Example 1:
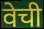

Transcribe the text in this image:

वेची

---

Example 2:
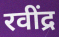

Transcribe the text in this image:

रवींद्र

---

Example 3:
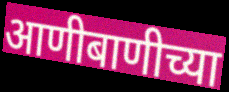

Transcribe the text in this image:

आणीबाणीच्या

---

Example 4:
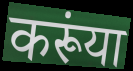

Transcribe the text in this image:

करूंया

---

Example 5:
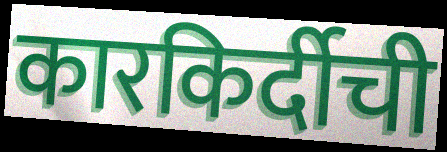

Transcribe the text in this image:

कारकिर्दीची